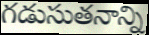
గడుసుతనాన్ని